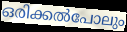
ഒരിക്കൽപോലും